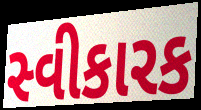
સ્વીકારક